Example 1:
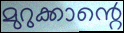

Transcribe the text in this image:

മുറുക്കാന്റെ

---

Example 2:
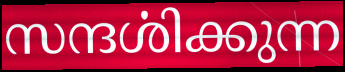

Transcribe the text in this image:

സന്ദൎശിക്കുന്ന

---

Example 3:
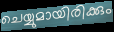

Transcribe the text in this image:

ചെയ്യുമായിരിക്കും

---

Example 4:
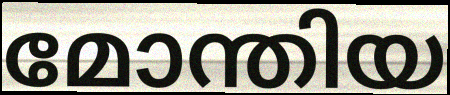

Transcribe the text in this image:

മോന്തിയ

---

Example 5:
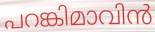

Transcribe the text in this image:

പറങ്കിമാവിൻ